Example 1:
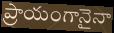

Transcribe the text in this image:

ప్రాయంగానైనా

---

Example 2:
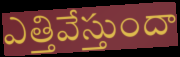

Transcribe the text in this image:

ఎత్తివేస్తుందా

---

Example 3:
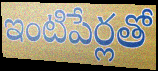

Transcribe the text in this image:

ఇంటిపేర్లతో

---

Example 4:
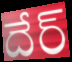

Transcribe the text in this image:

దేర్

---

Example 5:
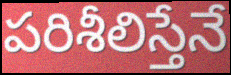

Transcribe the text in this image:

పరిశీలిస్తేనే